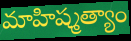
మాహిష్మత్యాం